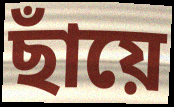
ছাঁয়ে